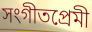
সংগীতপ্রেমী